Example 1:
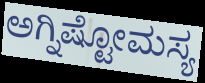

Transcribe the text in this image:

ಅಗ್ನಿಷ್ಟೋಮಸ್ಯ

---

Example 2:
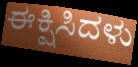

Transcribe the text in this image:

ಈಕ್ಷಿಸಿದಳು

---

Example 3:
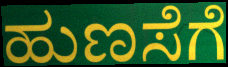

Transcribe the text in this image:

ಹುಣಸೆಗೆ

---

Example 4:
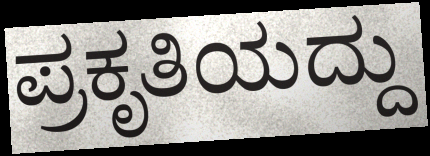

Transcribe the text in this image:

ಪ್ರಕೃತಿಯದ್ದು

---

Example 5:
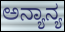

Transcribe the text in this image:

ಅನ್ಯಾನ್ಯ